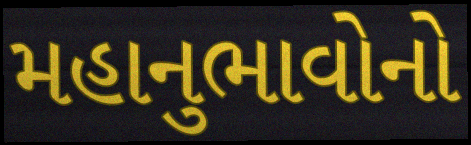
મહાનુભાવોનો